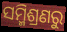
ସମ୍ମିଶ୍ରଣରୁ